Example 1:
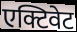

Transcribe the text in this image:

एक्टिवेट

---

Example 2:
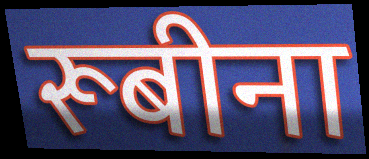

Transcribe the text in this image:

रूबीना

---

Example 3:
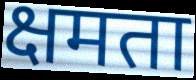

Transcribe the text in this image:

क्षमता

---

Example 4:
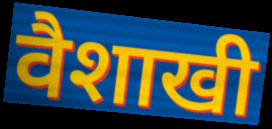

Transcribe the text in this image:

वैशाखी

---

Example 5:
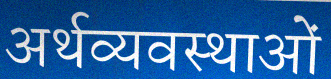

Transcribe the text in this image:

अर्थव्यवस्थाओं